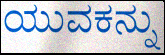
ಯುವಕನ್ನು